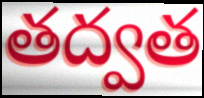
తద్వత